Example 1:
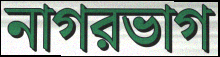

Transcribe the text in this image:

নাগরভাগ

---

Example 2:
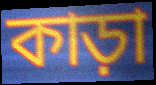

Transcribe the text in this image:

কাড়া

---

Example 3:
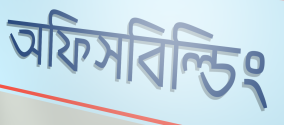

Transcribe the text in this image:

অফিসবিল্ডিং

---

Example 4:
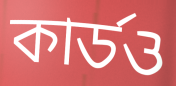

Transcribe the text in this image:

কার্ডও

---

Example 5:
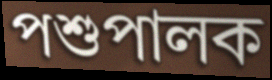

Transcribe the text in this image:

পশুপালক